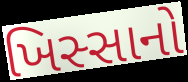
ખિસ્સાનો